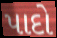
પાદો